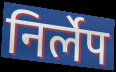
निर्लेप